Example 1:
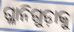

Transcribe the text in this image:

ଗ୍ଳାନିଗୁଡ଼ାକୁ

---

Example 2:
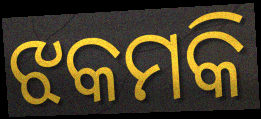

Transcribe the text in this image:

ଝକମକି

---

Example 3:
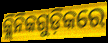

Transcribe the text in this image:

କ୍ଲିନିକଗୁଡ଼ିକରେ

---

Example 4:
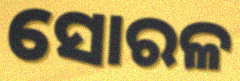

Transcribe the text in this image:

ସୋରଳ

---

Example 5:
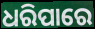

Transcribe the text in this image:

ଧରିପାରେ